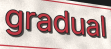
gradual